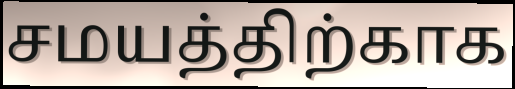
சமயத்திற்காக